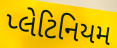
પ્લેટિનિયમ